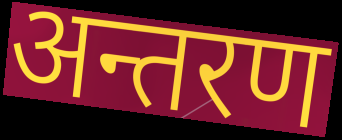
अन्तरण